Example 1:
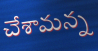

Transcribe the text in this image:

చేశామన్న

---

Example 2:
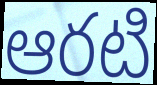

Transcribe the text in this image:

ఆరటి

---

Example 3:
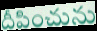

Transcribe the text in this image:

దీపించును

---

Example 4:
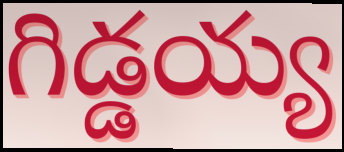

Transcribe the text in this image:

గిడ్డయ్య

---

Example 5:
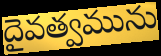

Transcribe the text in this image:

దైవత్వమును